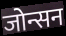
जोन्सन